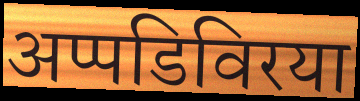
अप्पडिविरया